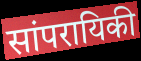
सांपरायिकी